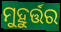
ମୁହୁର୍ତ୍ତର